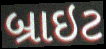
બ્રાઇટ